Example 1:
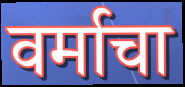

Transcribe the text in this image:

वर्माचा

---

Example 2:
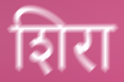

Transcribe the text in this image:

शिरा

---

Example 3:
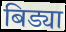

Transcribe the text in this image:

बिड्या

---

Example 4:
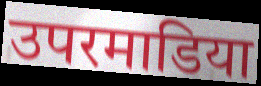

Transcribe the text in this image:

उपरमाडिया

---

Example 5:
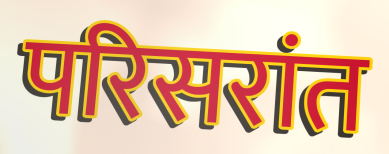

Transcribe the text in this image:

परिसरांत